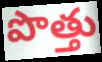
పొత్తు